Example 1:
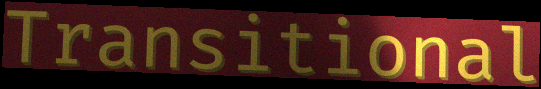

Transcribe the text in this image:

Transitional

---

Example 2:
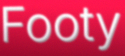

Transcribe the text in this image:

Footy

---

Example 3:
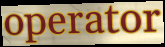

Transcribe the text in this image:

operator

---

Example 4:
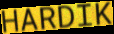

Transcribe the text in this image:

HARDIK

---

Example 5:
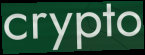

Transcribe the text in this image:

crypto